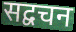
सद्वचन